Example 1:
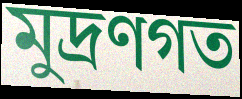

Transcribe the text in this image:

মুদ্রণগত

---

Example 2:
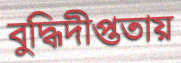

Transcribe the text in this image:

বুদ্ধিদীপ্ততায়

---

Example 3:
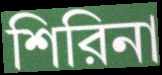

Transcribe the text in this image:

শিরিনা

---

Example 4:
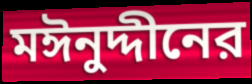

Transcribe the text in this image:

মঈনুদ্দীনের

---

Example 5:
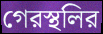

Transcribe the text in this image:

গেরস্থলির